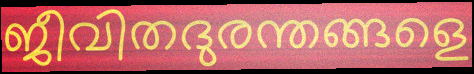
ജീവിതദുരന്തങ്ങളെ